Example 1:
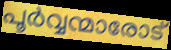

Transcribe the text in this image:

പൂർവ്വന്മാരോട്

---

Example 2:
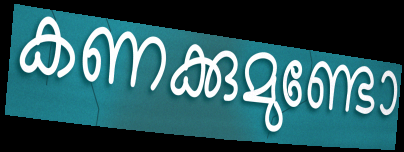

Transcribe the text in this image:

കണക്കുമുണ്ടോ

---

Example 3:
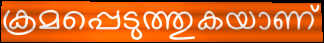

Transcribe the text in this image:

ക്രമപ്പെടുത്തുകയാണ്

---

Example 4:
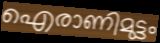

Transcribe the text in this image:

ഐരാണിമുട്ടം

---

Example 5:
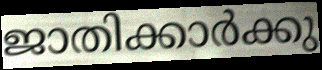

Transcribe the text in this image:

ജാതിക്കാർക്കു